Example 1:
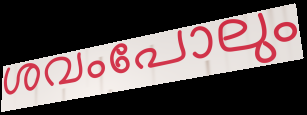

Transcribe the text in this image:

ശവംപോലും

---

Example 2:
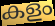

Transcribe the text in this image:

കളം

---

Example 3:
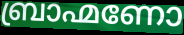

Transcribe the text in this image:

ബ്രാഹ്മണോ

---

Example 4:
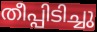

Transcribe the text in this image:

തീപ്പിടിച്ചു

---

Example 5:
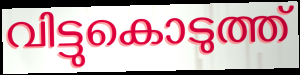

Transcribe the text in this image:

വിട്ടുകൊടുത്ത്